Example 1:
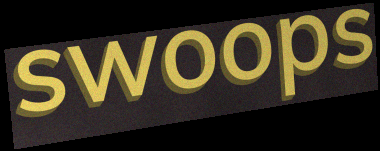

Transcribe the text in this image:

swoops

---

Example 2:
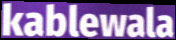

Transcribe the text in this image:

kablewala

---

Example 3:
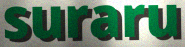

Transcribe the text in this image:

suraru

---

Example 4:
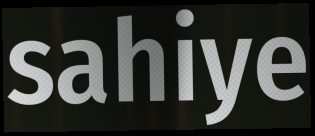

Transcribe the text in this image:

sahiye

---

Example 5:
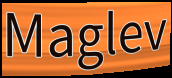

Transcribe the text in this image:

Maglev